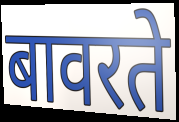
बावरते